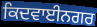
ਕਿਦਵਾਈਨਗਰ